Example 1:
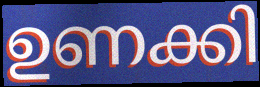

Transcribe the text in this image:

ഉണക്കി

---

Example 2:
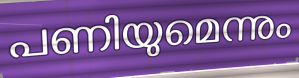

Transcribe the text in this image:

പണിയുമെന്നും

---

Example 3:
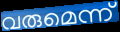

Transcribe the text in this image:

വരുമെന്ന്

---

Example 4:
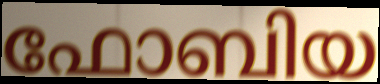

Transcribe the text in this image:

ഫോബിയ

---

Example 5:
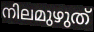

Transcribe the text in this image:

നിലമുഴുത്